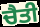
ਚੈਤੀ